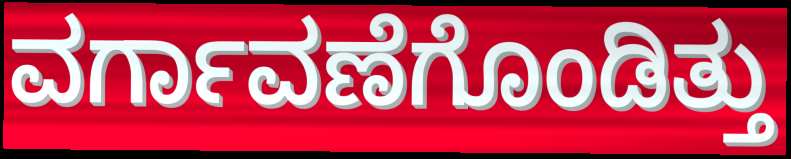
ವರ್ಗಾವಣೆಗೊಂಡಿತ್ತು